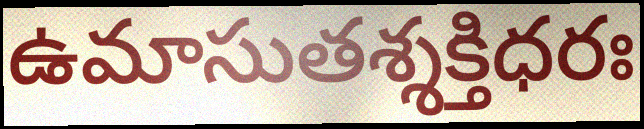
ఉమాసుతశ్శక్తిధరః